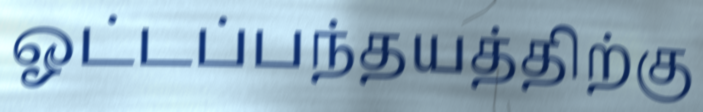
ஓட்டப்பந்தயத்திற்கு